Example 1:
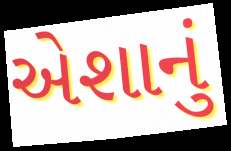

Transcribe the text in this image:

એશાનું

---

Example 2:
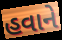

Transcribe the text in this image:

હવાને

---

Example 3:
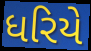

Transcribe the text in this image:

ધરિયે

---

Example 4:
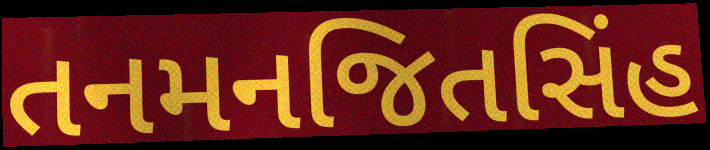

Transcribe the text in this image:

તનમનજિતસિંહ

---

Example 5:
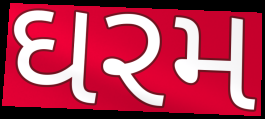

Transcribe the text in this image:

ઘરમ